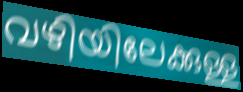
വഴിയിലേക്കുള്ള